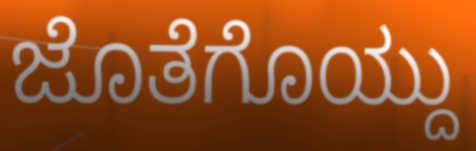
ಜೊತೆಗೊಯ್ದು